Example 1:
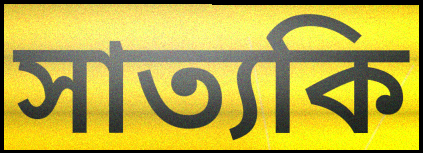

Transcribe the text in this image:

সাত্যকি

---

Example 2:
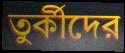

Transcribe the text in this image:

তুর্কীদের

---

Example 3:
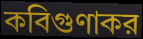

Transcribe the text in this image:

কবিগুণাকর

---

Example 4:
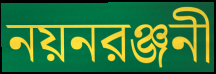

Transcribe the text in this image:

নয়নরঞ্জনী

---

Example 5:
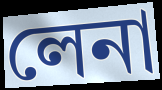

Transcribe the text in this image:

লেনা